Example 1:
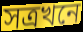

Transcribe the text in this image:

সত্ৰখনে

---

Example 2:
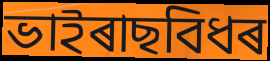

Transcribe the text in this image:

ভাইৰাছবিধৰ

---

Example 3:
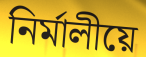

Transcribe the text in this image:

নিৰ্মালীয়ে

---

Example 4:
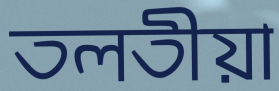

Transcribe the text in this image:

তলতীয়া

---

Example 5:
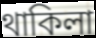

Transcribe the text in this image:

থাকিলা